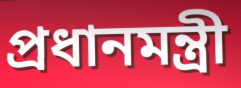
প্ৰধানমন্ত্ৰী